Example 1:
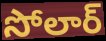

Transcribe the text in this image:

సోలార్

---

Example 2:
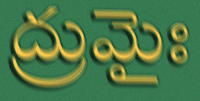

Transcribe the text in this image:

ద్రుమైః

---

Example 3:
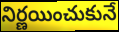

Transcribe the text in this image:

నిర్ణయించుకునే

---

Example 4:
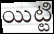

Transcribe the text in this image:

యిట్టి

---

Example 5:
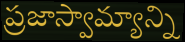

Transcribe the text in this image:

ప్రజాస్వామ్యాన్ని